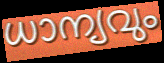
ധാന്യവും